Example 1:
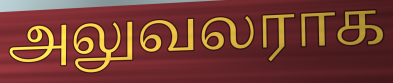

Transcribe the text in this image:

அலுவலராக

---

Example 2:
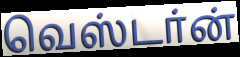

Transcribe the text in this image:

வெஸ்டர்ன்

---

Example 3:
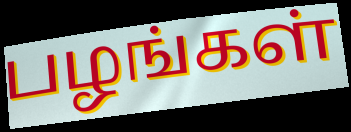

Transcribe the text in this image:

பழங்கள்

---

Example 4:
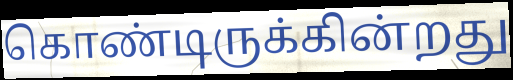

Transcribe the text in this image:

கொண்டிருக்கின்றது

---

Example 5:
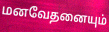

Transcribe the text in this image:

மனவேதனையும்